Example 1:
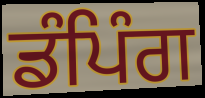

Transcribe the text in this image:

ਡੰਪਿੰਗ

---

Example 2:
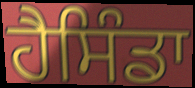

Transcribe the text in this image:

ਹੈਸਿੰਡਾ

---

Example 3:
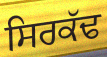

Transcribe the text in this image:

ਸਿਰਕੱਢ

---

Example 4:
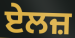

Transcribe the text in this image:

ਏਲਜ਼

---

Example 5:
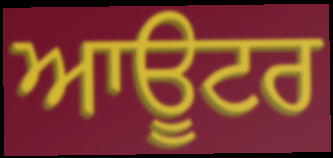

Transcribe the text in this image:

ਆਊਟਰ